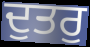
ਦੁਤਰੁ